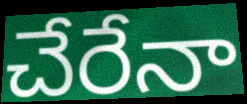
చేరేనా